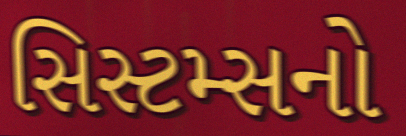
સિસ્ટમ્સનો